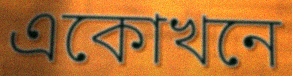
একোখনে